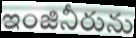
ఇంజినీరును